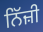
ਨਿੱਜ਼ੀ